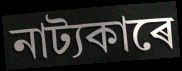
নাট্যকাৰে